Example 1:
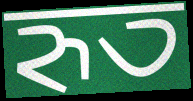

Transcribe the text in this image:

হৃত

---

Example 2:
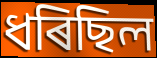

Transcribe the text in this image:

ধৰিছিল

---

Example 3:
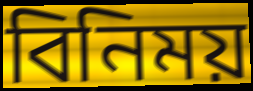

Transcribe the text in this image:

বিনিময়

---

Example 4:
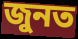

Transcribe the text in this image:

জুনত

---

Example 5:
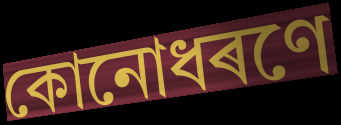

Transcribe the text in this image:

কোনোধৰণে